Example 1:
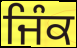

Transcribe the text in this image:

ਜਿੰਕ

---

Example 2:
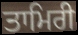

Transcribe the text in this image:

ਤਾਮਿਰੀ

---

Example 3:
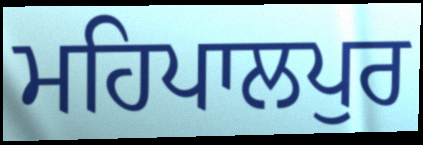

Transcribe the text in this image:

ਮਹਿਪਾਲਪੁਰ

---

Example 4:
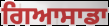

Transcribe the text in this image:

ਗਿਆਸਾਡਾ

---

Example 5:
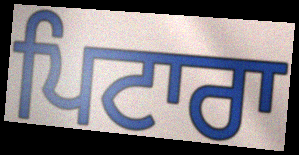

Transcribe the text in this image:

ਪਿਟਾਰਾ